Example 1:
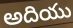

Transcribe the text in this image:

అదియు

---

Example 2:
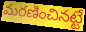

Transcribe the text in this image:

మరణించినట్టే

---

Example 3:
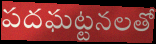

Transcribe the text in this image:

పదఘట్టనలతో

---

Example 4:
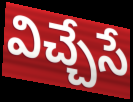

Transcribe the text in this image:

విచ్చేసే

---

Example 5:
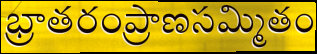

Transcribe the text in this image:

భ్రాతరంప్రాణసమ్మితం